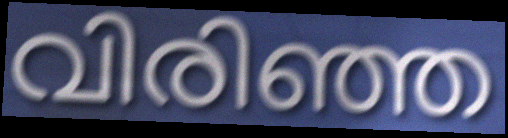
വിരിഞ്ഞ